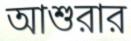
আশুরার